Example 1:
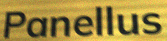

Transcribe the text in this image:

Panellus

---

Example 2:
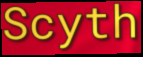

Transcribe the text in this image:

Scyth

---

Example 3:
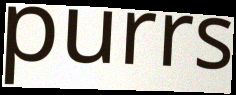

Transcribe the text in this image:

purrs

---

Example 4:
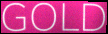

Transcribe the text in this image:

GOLD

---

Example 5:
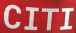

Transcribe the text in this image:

CITI